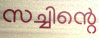
സച്ചിന്റെ